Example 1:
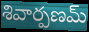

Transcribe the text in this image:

శివార్పణమ్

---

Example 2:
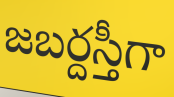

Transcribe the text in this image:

జబర్దస్తీగా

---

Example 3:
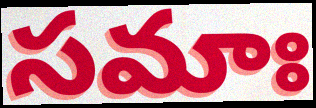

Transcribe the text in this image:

సమాః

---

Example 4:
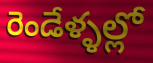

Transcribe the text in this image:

రెండేళ్ళల్లో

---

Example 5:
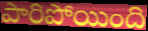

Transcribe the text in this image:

పారిపోయింది